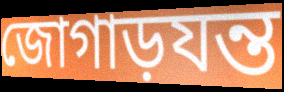
জোগাড়যন্ত